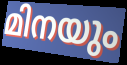
മിനയും